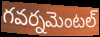
గవర్నమెంటల్